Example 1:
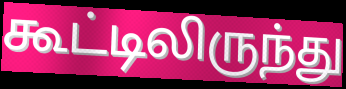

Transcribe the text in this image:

கூட்டிலிருந்து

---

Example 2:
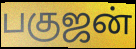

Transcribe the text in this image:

பகுஜன்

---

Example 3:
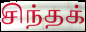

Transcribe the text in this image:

சிந்தக்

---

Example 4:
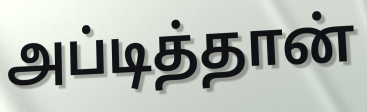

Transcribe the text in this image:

அப்டித்தான்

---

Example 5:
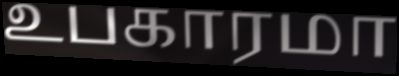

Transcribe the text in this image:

உபகாரமா